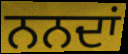
ਨਨਦਾਂ